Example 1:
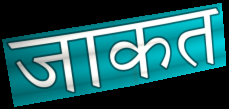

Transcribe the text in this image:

जाकत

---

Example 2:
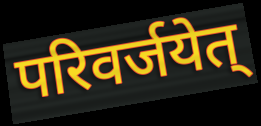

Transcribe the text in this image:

परिवर्जयेत्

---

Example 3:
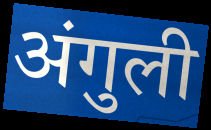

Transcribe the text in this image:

अंगुली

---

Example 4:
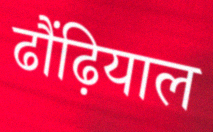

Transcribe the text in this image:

ढौंढ़ियाल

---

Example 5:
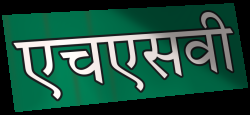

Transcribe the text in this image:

एचएसवी